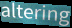
altering